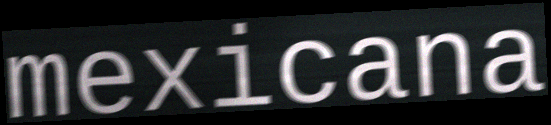
mexicana